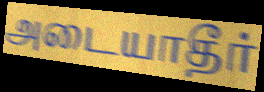
அடையாதீர்